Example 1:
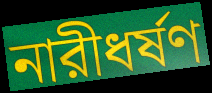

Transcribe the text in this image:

নারীধর্ষণ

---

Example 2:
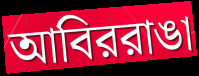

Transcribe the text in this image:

আবিররাঙা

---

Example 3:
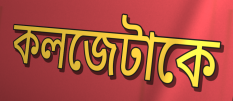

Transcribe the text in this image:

কলজেটাকে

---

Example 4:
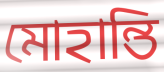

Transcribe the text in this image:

মোহান্তি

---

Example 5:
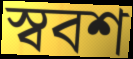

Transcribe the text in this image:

স্ববশ